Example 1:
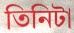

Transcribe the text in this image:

তিনিটা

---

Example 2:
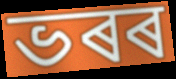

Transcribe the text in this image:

ভৰৰ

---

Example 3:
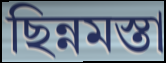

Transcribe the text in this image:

ছিন্নমস্তা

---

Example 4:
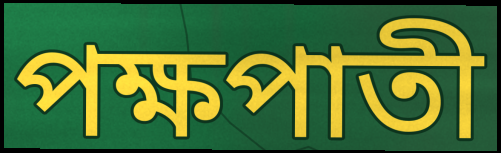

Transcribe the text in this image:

পক্ষপাতী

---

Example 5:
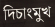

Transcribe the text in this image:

দিচাংমুখ